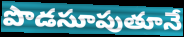
పొడసూపుతూనే